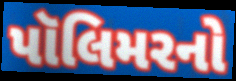
પૉલિમરનો